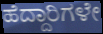
ಹೆದ್ದಾರಿಗಳೇ